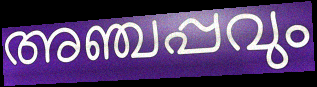
അഞ്ചപ്പവും